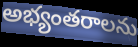
అభ్యంతరాలను